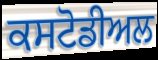
ਕਸਟੋਡੀਅਲ